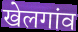
खेलगांव